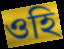
ওহি